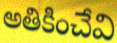
అతికించేవి